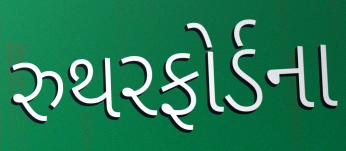
રુથરફોર્ડના